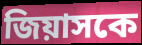
জিয়াসকে